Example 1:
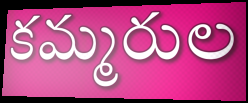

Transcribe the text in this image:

కమ్మరుల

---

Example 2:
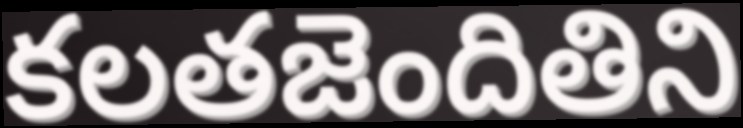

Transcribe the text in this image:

కలతజెందితిని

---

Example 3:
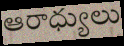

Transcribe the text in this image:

ఆరాధ్యులు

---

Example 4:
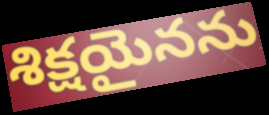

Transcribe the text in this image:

శిక్షయైనను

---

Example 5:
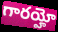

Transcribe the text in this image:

గారయ్హో